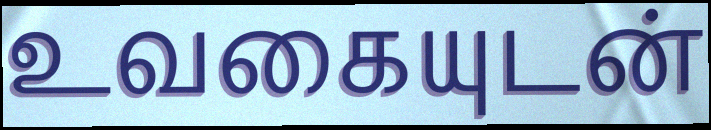
உவகையுடன்